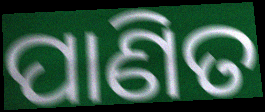
ପାଣିତ